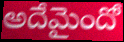
అదేమైందో